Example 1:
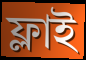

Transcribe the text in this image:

ফ্লাই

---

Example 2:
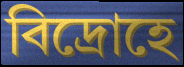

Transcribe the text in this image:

বিদ্ৰোহে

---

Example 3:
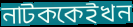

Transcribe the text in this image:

নাটককেইখন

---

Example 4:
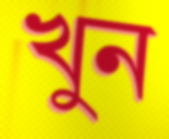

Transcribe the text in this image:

খুন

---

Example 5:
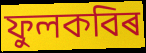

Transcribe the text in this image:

ফুলকবিৰ